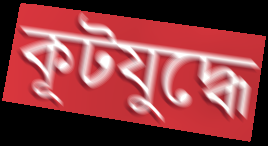
কূটযুদ্ধে